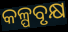
କଳ୍ପବୃକ୍ଷ